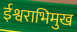
ईश्वराभिमुख